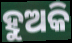
ହୁଅକି